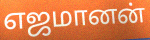
எஜமானன்